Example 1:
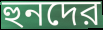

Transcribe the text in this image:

হুনদের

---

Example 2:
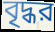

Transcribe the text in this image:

বৃদ্ধর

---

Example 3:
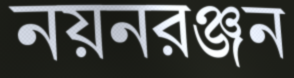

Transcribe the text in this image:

নয়নরঞ্জন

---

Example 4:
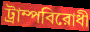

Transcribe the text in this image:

ট্রাম্পবিরোধী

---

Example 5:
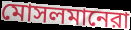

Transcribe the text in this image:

মোসলমানেরা